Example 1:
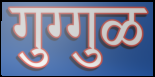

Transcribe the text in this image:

गुग्गुळ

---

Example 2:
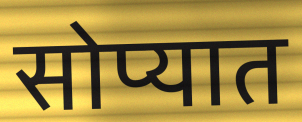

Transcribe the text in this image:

सोप्यात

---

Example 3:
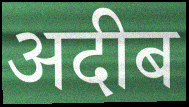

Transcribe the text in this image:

अदीब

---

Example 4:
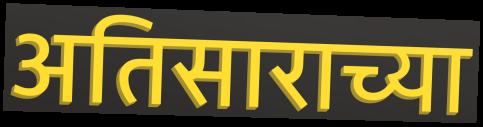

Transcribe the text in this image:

अतिसाराच्या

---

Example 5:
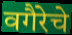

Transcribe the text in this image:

वगैरेचे